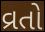
વ્રતો